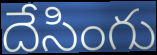
దేసింగు